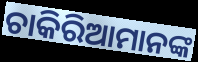
ଚାକିରିଆମାନଙ୍କ